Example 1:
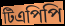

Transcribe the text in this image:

টিএপিপি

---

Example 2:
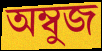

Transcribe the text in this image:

অম্বুজ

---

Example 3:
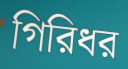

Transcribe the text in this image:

গিরিধর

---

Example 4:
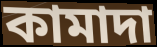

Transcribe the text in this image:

কামাদা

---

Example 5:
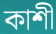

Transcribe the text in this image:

কাশী